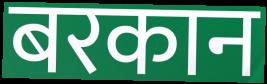
बरकान